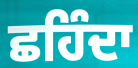
ਛਹਿੰਦਾ